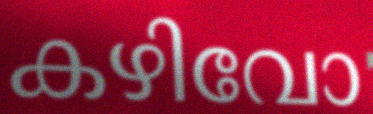
കഴിവോ